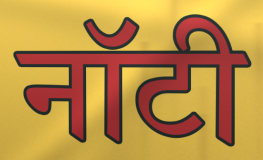
नॉटी